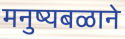
मनुष्यबळाने